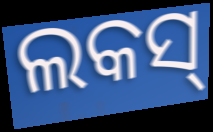
ଲକସ୍